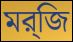
মর্‌জি